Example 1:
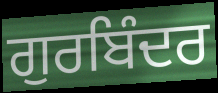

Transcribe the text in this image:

ਗੁਰਬਿੰਦਰ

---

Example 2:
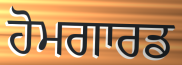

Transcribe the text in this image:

ਹੋਮਗਾਰਡ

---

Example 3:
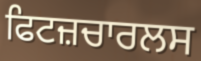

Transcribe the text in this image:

ਫਿਟਜ਼ਚਾਰਲਸ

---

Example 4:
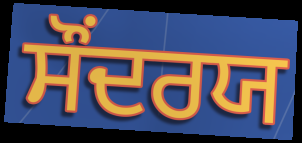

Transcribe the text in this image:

ਸੌਂਦਰਯ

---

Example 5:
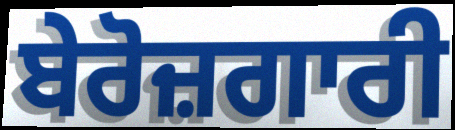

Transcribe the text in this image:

ਬੇਰੋਜ਼ਗਾਰੀ